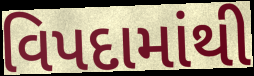
વિપદામાંથી